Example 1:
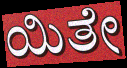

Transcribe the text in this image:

ಯಿತೇ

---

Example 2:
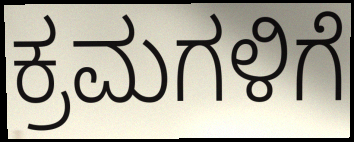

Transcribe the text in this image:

ಕ್ರಮಗಳಿಗೆ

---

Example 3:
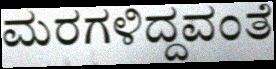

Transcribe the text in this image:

ಮರಗಳಿದ್ದವಂತೆ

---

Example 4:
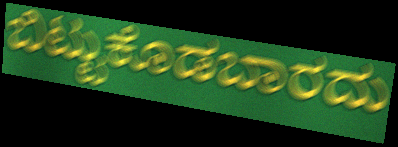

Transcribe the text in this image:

ಬಿಟ್ಟುಕೊಡಬಾರದು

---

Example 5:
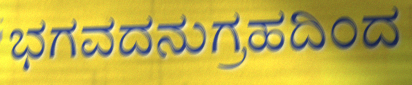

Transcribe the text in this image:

ಭಗವದನುಗ್ರಹದಿಂದ